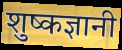
शुष्कज्ञानी